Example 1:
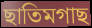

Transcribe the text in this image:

ছাতিমগাছ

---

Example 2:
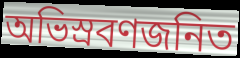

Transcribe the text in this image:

অভিস্রবণজনিত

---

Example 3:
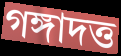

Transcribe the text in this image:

গঙ্গাদত্ত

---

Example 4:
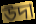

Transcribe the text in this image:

উদা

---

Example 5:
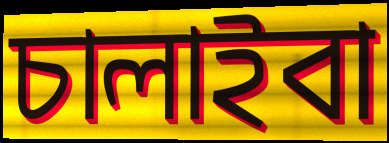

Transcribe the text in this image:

চালাইবা